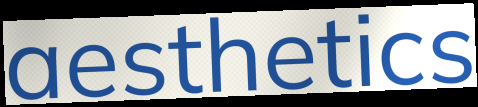
aesthetics